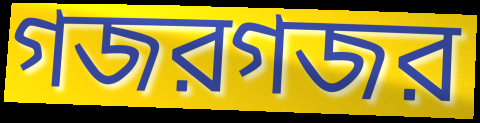
গজরগজর